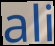
ali